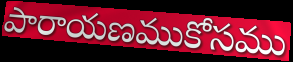
పారాయణముకోసము